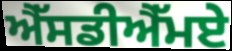
ਐੱਸਡੀਐੱਮਏ